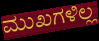
ಮುಖಗಳಿಲ್ಲ